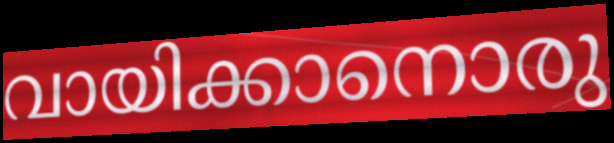
വായിക്കാനൊരു